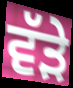
ਵੱਡ਼ੇ